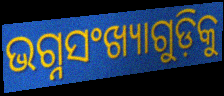
ଭଗ୍ନସଂଖ୍ୟାଗୁଡ଼ିକୁ